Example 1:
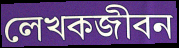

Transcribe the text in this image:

লেখকজীবন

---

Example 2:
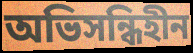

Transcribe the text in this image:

অভিসন্ধিহীন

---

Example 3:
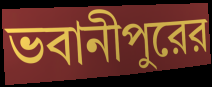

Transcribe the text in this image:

ভবানীপুরের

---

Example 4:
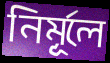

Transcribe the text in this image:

নির্মূলে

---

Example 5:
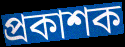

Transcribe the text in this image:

প্রকাশক